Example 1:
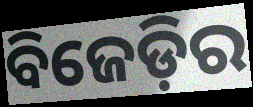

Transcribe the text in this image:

ବିଜେଡ଼ିର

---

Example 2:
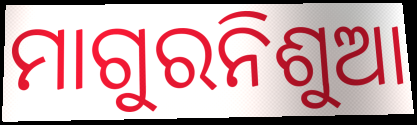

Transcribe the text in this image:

ମାଗୁରନିଶୁଆ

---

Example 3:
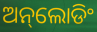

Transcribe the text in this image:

ଅନ୍‌ଲୋଡିଂ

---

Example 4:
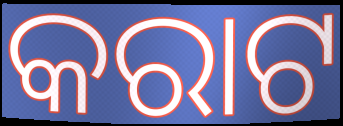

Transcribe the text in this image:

କରାଟ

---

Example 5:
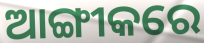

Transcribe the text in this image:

ଆଙ୍ଗୀକରେ